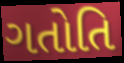
ગતોતિ